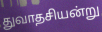
துவாதசியன்று